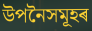
উপনৈসমূহৰ